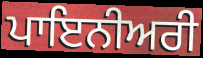
ਪਾਇਨੀਅਰੀ